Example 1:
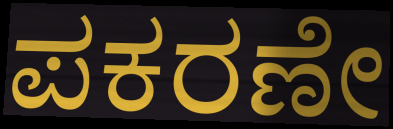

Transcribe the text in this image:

ಪಕರಣೇ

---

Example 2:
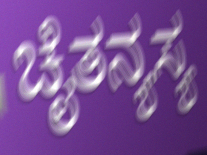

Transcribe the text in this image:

ಚೈತನ್ಯಸ್ಯ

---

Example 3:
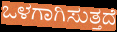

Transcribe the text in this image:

ಒಳಗಾಗಿಸುತ್ತದೆ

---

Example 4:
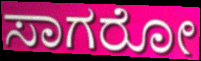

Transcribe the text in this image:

ಸಾಗರೋ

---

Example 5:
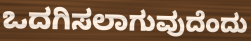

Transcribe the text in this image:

ಒದಗಿಸಲಾಗುವುದೆಂದು